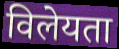
विलेयता